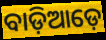
ବାଡ଼ିଆଡ଼େ